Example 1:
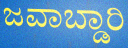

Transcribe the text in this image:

ಜವಾಬ್ಡಾರಿ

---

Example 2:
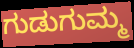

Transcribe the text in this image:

ಗುಡುಗುಮ್ಮ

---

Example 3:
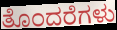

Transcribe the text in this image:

ತೊಂದರೆಗಳು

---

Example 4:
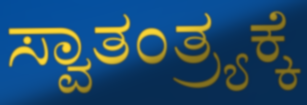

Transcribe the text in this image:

ಸ್ವಾತಂತ್ರ್ಯಕ್ಕೆ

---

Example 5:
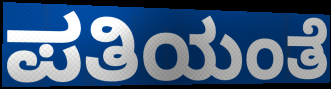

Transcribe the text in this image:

ಪತಿಯಂತೆ